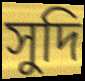
সুদি